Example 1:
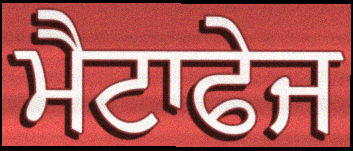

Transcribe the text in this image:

ਮੈਟਾਫੇਜ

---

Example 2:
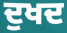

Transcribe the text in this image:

ਦੁਖਦ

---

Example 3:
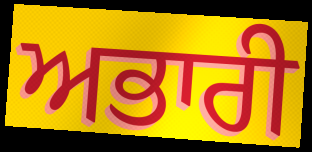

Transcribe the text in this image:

ਅਭਾਰੀ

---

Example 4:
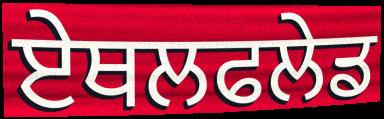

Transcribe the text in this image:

ਏਥਲਫਲੇਡ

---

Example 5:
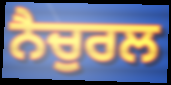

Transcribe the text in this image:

ਨੈਚੁਰਲ